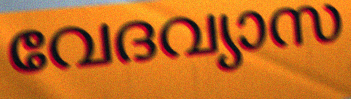
വേദവ്യാസ